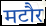
मटौर